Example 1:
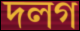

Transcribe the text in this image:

দলগ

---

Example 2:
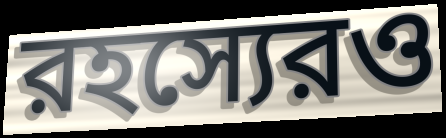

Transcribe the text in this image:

রহস্যেরও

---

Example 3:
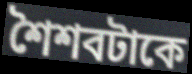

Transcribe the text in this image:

শৈশবটাকে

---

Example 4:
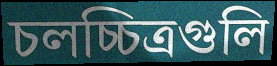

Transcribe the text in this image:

চলচ্চিত্রগুলি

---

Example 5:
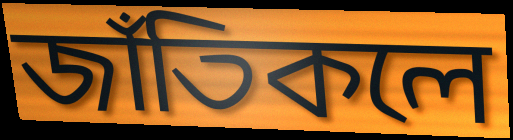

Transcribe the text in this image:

জাঁতিকলে